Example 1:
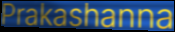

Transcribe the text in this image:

Prakashanna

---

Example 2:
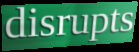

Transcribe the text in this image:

disrupts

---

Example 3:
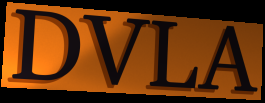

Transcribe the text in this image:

DVLA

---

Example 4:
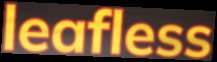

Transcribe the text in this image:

leafless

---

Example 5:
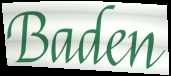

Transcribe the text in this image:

Baden